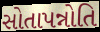
સોતાપન્નોતિ